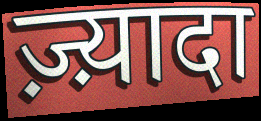
ज़्य़ादा